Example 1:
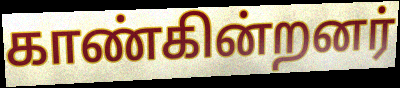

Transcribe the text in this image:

காண்கின்றனர்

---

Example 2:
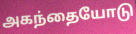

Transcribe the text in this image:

அகந்தையோடு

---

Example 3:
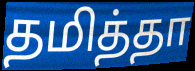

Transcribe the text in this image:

தமித்தா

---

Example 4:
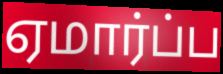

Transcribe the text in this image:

ஏமார்ப்ப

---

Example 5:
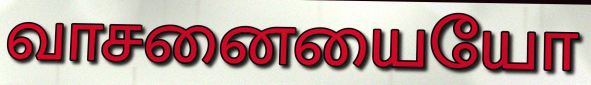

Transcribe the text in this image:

வாசனையையோ